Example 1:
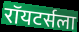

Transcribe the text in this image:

रॉयटर्सला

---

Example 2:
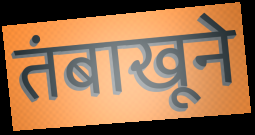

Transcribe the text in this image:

तंबाखूने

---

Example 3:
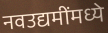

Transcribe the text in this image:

नवउद्यमींमध्ये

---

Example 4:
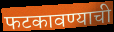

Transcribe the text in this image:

फटकावण्याची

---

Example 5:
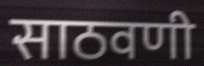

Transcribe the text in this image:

साठवणी